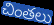
చింతలు